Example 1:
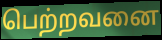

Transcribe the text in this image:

பெற்றவனை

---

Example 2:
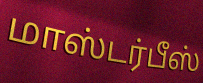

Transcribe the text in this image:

மாஸ்டர்பீஸ்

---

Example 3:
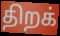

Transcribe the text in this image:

திறக்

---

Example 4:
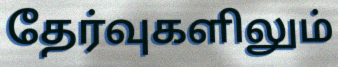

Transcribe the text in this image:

தேர்வுகளிலும்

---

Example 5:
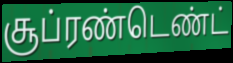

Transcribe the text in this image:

சூப்ரண்டெண்ட்